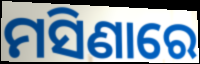
ମସିଣାରେ